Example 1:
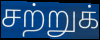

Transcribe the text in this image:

சற்றுக்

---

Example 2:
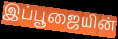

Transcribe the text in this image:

இப்பூஜையின்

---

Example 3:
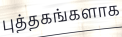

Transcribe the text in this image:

புத்தகங்களாக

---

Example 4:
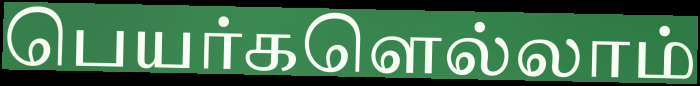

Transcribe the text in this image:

பெயர்களெல்லாம்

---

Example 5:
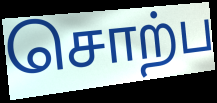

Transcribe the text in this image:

சொற்ப